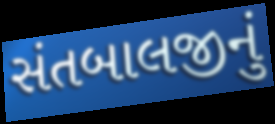
સંતબાલજીનું